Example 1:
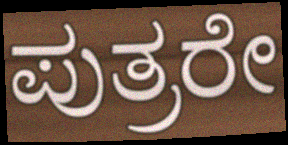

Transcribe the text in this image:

ಪುತ್ರರೇ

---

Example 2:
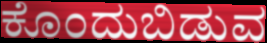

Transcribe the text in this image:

ಕೊಂದುಬಿಡುವ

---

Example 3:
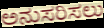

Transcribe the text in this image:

ಅನುಸರಿಸಲು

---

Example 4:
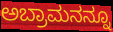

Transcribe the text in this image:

ಅಬ್ರಾಮನನ್ನೂ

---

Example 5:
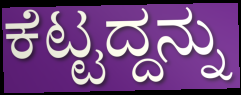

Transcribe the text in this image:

ಕೆಟ್ಟದ್ದನ್ನು